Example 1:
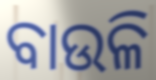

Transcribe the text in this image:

ବାଉଳି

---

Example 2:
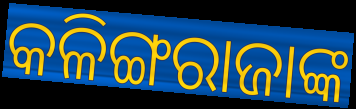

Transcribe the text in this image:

କଳିଙ୍ଗରାଜାଙ୍କ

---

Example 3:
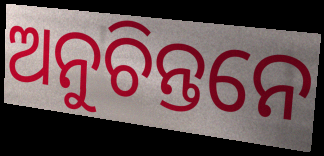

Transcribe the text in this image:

ଅନୁଚିନ୍ତନେ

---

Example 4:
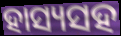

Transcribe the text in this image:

ହାସ୍ୟସହ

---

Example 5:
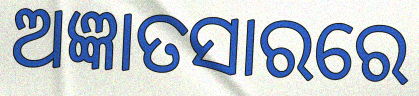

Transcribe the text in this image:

ଅଜ୍ଞାତସାରରେ